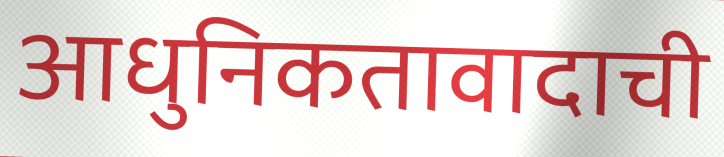
आधुनिकतावादाची